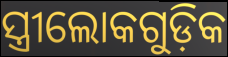
ସ୍ତ୍ରୀଲୋକଗୁଡ଼ିକ